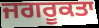
ਜਗਰੂਕਤਾ